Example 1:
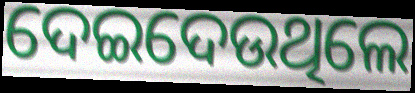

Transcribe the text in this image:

ଦେଇଦେଉଥିଲେ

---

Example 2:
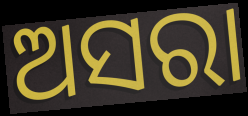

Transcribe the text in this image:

ଅସରା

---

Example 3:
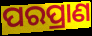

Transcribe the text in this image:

ପରପ୍ରାଣ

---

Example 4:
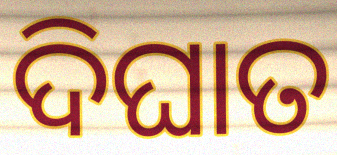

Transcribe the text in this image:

ଦିଘାତ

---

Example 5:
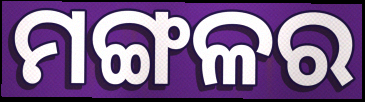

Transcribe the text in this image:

ମଙ୍ଗଳର